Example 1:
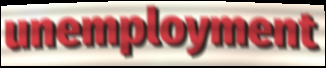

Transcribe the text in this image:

unemployment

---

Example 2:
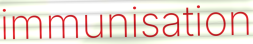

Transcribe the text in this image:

immunisation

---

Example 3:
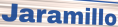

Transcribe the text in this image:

Jaramillo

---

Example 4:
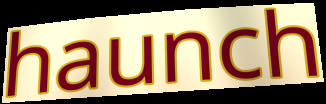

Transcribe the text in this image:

haunch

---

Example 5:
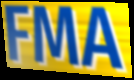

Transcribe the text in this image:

FMA